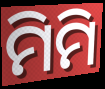
ମିମି